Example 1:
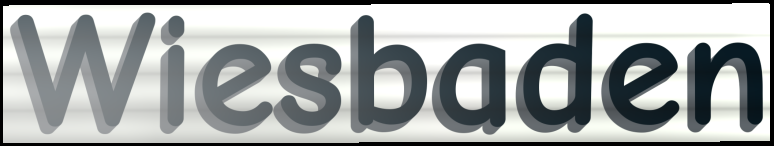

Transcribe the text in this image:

Wiesbaden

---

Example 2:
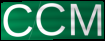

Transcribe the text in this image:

CCM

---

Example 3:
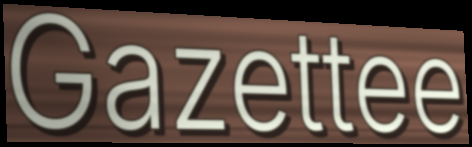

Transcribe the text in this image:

Gazettee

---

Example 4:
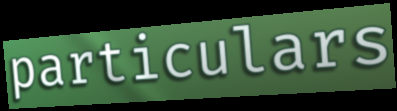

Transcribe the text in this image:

particulars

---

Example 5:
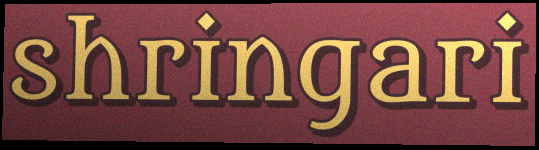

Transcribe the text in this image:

shringari